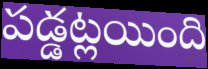
పడ్డట్లయింది